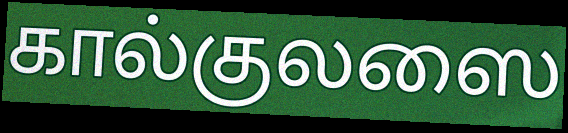
கால்குலஸை